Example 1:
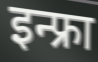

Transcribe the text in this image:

इन्फ्रा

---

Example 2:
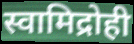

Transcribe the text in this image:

स्वामिद्रोही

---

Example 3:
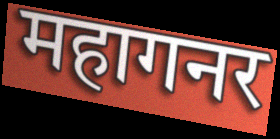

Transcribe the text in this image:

महागनर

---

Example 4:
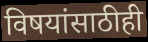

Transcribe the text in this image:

विषयांसाठीही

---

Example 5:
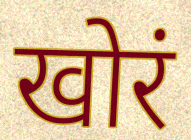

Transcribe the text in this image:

खोरं